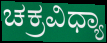
ಚಕ್ರವಿಧ್ಯಾ